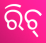
ରିଚ୍